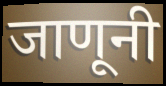
जाणूनी